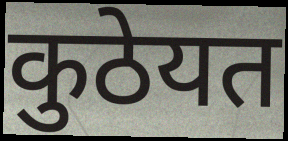
कुठेयत